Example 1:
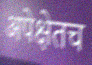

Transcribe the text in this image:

अपेक्षेतच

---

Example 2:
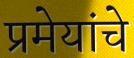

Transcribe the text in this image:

प्रमेयांचे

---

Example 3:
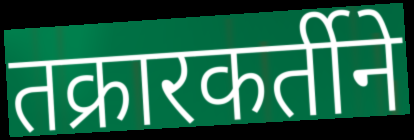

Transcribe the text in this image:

तक्रारकर्तीने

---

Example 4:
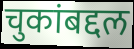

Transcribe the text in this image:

चुकांबद्दल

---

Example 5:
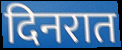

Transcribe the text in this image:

दिनरात